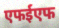
एफईएफ